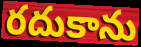
రదుకాను